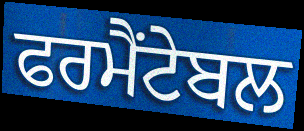
ਫਰਮੈਂਟੇਬਲ